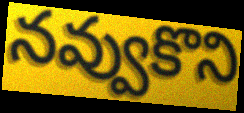
నవ్వుకొని